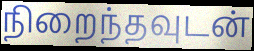
நிறைந்தவுடன்